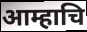
आम्हाचि